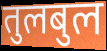
तुलबुल